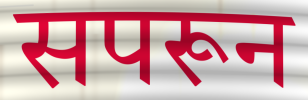
सपरून